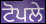
ਟੋਪਲੇ